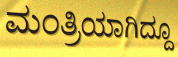
ಮಂತ್ರಿಯಾಗಿದ್ದೂ